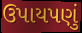
ઉપાયપણું